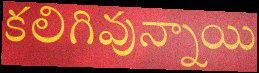
కలిగివున్నాయి